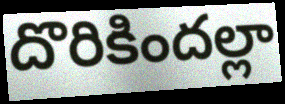
దొరికిందల్లా